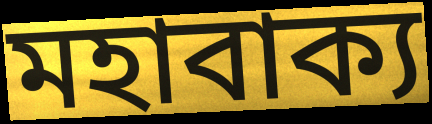
মহাবাক্য